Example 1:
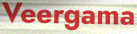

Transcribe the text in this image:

Veergama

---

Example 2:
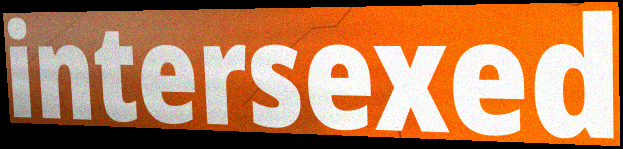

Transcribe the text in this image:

intersexed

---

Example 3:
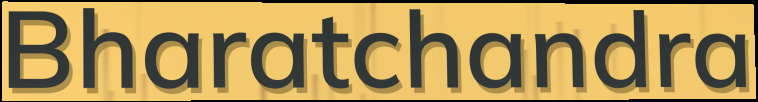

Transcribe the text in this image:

Bharatchandra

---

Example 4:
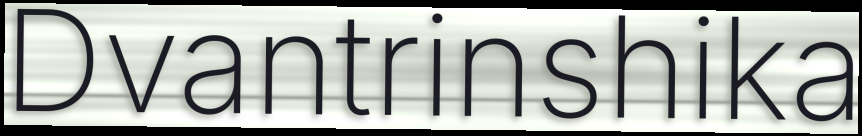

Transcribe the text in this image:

Dvantrinshika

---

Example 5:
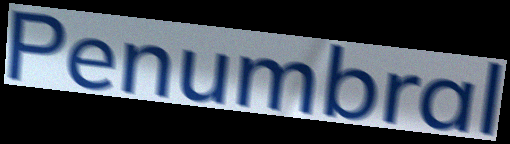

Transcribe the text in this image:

Penumbral